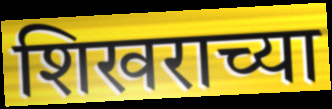
शिखराच्या